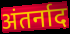
अंतर्नाद